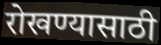
रोखण्यासाठी